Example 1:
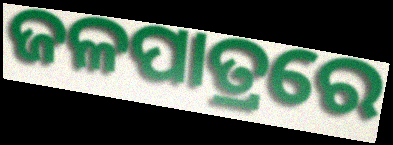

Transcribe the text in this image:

ଜଳପାତ୍ରରେ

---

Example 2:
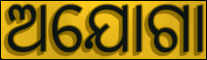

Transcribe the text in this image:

ଅଯୋଗା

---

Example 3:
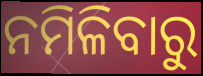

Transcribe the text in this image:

ନମିଳିବାରୁ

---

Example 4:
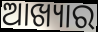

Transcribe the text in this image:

ଆଖ୍ୟାର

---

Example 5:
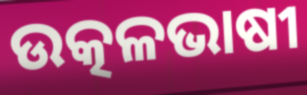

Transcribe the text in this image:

ଉତ୍କଳଭାଷୀ